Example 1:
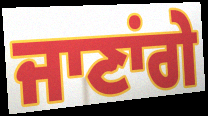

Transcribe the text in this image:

ਜਾਣਾਂਗੇ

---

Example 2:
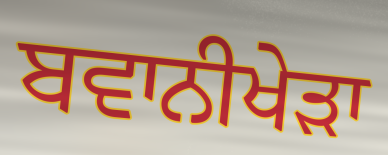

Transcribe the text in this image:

ਬਵਾਨੀਖੇੜਾ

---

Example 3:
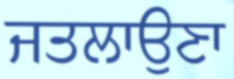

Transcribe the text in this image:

ਜਤਲਾਉਣਾ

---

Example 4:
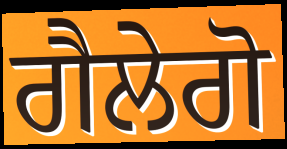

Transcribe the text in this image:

ਗੈਲੇਗੋ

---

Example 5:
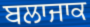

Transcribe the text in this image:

ਬਲਾਜਾਕ